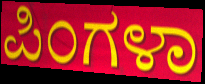
ಪಿಂಗಳಾ